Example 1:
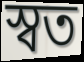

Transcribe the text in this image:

স্বত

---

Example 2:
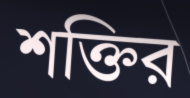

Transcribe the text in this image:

শক্তির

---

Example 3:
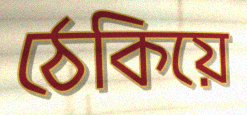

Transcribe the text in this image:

ঠেকিয়ে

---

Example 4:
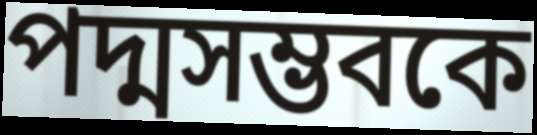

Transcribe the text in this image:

পদ্মসম্ভবকে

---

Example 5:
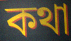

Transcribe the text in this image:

কথা